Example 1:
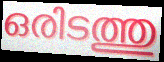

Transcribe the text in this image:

ഒരിടത്തു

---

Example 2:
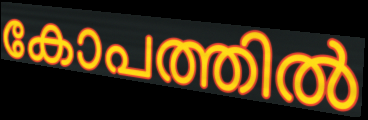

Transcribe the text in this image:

കോപത്തിൽ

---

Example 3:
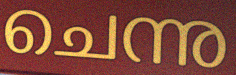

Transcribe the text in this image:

ചെന്നു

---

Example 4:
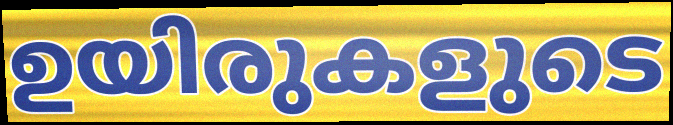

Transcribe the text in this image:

ഉയിരുകളുടെ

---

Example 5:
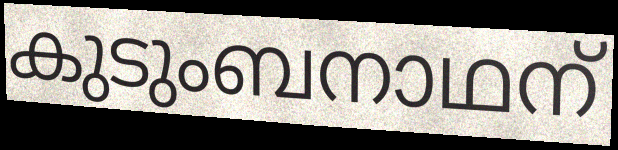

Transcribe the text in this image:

കുടുംബനാഥന്